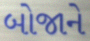
બોજાને